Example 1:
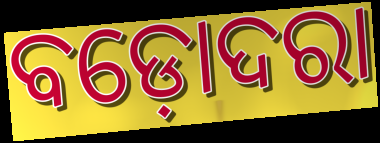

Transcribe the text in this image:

ବଡ଼ୋଦରା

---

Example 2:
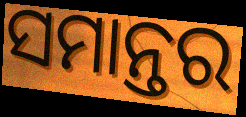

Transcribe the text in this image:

ସମାନ୍ତର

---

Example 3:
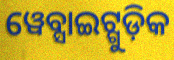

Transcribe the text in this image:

ୱେବ୍ସାଇଟ୍ଗୁଡ଼ିକ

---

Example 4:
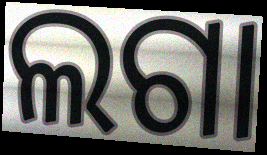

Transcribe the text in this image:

ଲଗା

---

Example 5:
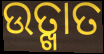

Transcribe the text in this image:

ଉତ୍ଖାତ